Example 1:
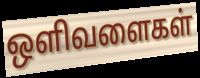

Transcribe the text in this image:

ஒளிவளைகள்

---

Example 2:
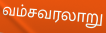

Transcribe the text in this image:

வம்சவரலாறு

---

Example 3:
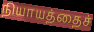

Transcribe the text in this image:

நியாயத்தைச்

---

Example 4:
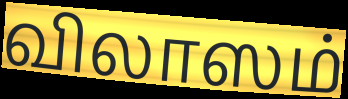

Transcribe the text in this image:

விலாஸம்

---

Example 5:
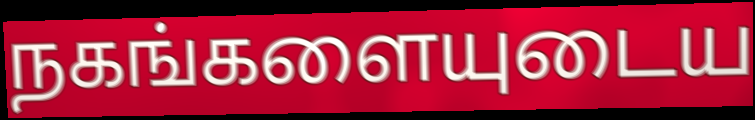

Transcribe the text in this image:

நகங்களையுடைய